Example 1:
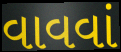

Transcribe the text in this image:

વાવવાં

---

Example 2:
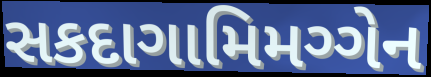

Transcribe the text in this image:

સકદાગામિમગ્ગેન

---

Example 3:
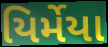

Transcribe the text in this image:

યિર્મેયા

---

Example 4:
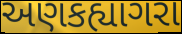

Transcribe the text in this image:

અણકહ્યાગરા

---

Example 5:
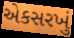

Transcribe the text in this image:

એકસરખું